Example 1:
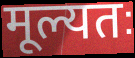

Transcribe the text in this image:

मूल्यतः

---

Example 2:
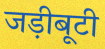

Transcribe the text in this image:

जड़ीबूटी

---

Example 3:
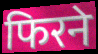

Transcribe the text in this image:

फिरने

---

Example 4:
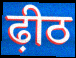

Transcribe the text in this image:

ढ़ीठ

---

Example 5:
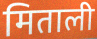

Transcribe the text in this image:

मिताली